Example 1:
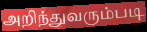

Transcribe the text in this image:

அறிந்துவரும்படி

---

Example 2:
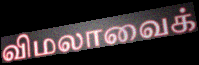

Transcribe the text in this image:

விமலாவைக்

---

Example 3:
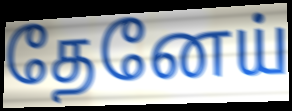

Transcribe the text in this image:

தேனேய்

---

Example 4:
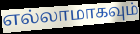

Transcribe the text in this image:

எல்லாமாகவும்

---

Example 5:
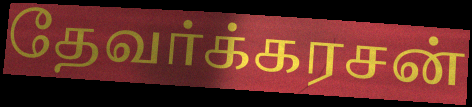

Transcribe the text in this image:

தேவர்க்கரசன்